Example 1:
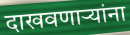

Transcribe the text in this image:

दाखवणाऱ्यांना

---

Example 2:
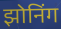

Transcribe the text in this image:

झोनिंग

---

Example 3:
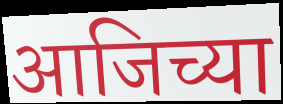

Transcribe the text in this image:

आजिच्या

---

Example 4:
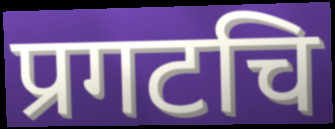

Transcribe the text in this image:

प्रगटचि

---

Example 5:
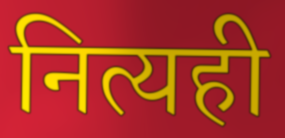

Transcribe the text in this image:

नित्यही